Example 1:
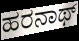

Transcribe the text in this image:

ಹರನಾಥ್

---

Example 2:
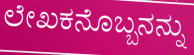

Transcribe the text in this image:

ಲೇಖಕನೊಬ್ಬನನ್ನು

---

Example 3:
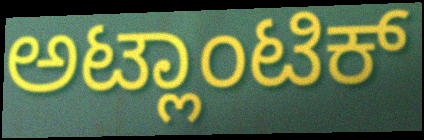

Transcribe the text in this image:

ಅಟ್ಲಾಂಟಿಕ್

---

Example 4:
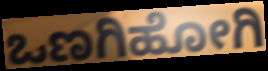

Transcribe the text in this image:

ಒಣಗಿಹೋಗಿ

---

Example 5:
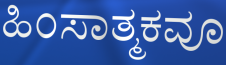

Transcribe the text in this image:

ಹಿಂಸಾತ್ಮಕವೂ